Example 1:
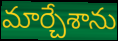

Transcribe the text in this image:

మార్చేశాను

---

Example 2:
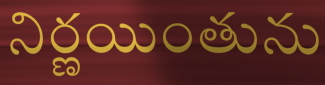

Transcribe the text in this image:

నిర్ణయింతును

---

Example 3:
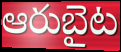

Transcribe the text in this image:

ఆరుబైట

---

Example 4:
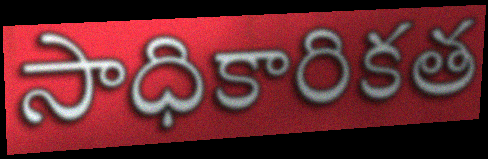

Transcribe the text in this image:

సాధికారికత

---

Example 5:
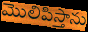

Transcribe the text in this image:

మొలిపిస్తాను